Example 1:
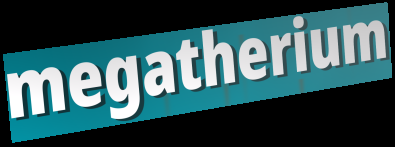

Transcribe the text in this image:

megatherium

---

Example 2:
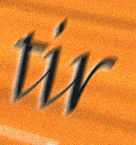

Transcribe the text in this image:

tir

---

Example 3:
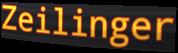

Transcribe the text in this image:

Zeilinger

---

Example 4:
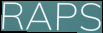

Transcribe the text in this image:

RAPS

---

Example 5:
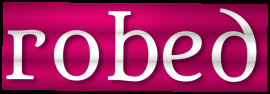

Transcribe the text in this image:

robed